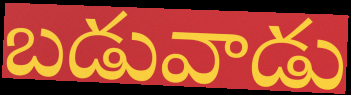
బడువాడు